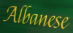
Albanese